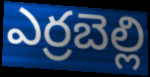
ఎర్రబెల్లి